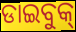
ଡାଇବୁକ୍